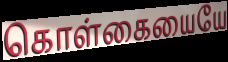
கொள்கையையே